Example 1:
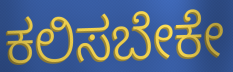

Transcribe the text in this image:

ಕಲಿಸಬೇಕೇ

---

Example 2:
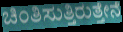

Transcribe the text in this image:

ಚಿಂತಿಸುತ್ತಿರುತ್ತೇನೆ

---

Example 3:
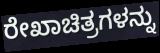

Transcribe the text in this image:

ರೇಖಾಚಿತ್ರಗಳನ್ನು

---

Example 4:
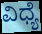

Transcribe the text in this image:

ವಿಧ್ಯೆ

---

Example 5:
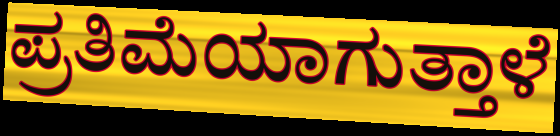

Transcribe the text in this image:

ಪ್ರತಿಮೆಯಾಗುತ್ತಾಳೆ